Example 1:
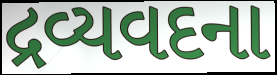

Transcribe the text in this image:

દ્રવ્યવદના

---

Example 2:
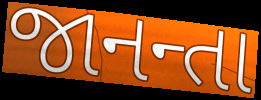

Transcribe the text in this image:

જાનન્તા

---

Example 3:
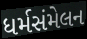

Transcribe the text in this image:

ધર્મસંમેલન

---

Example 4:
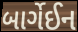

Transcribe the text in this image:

બાર્ગેઈન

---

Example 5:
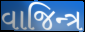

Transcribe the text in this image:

વાજિન્ત્ર